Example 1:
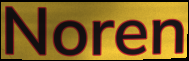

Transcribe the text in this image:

Noren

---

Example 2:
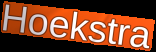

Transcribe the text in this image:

Hoekstra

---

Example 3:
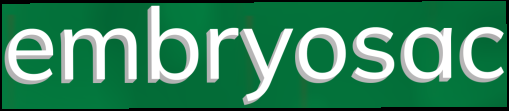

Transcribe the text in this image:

embryosac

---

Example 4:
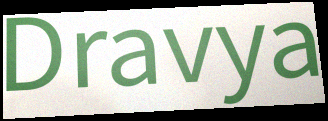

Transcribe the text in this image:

Dravya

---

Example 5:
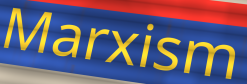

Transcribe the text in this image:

Marxism